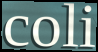
coli